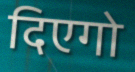
दिएगो